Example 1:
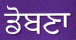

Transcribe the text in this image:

ਡੋਬਣਾ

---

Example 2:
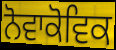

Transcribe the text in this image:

ਨੋਵਾਕੋਵਿਕ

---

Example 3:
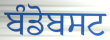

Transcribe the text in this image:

ਬੰਡੋਬਸਟ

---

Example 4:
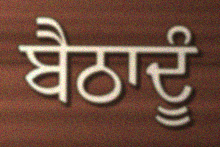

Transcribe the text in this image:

ਬੈਠਾਦੂੰ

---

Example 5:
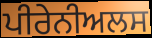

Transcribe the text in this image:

ਪੀਰੇਨੀਅਲਸ